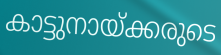
കാട്ടുനായ്ക്കരുടെ